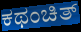
ಕಥಂಚಿತ್